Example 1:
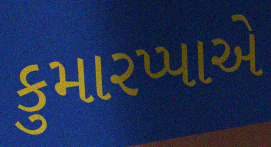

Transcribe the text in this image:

કુમારપ્પાએ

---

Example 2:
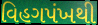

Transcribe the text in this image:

વિહગપંખથી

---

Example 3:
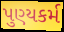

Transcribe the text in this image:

પુણ્યકર્મ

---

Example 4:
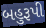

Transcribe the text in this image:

બહુરૂપી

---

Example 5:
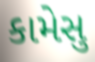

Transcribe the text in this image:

કામેસુ